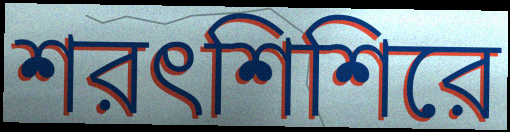
শরৎশিশিরে